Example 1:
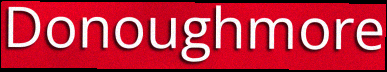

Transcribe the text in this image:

Donoughmore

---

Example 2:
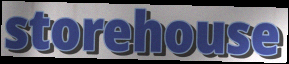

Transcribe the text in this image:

storehouse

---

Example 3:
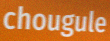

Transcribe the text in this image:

chougule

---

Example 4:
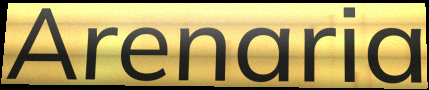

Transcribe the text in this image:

Arenaria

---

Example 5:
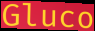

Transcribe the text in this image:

Gluco